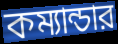
কম্যান্ডার